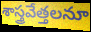
శాస్త్రవేత్తలనూ